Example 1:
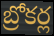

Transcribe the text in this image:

బ్రోకర్ల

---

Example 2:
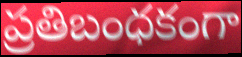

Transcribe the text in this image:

ప్రతిబంధకంగా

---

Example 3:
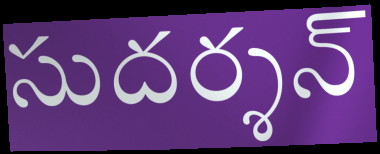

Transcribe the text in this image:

సుదర్శన్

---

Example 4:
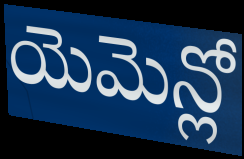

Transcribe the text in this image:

యెమెన్లో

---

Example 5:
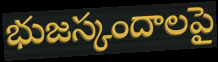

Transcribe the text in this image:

భుజస్కందాలపై